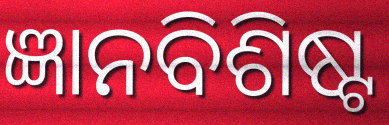
ଜ୍ଞାନବିଶିଷ୍ଟ